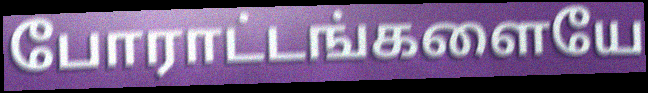
போராட்டங்களையே